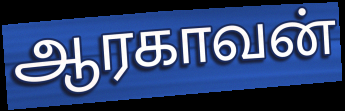
ஆரகாவன்